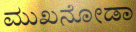
ಮುಖನೋಡಾ